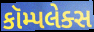
કૉમ્પલેક્સ